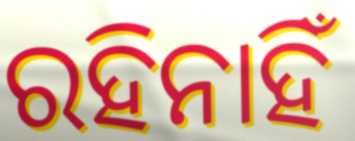
ରହିନାହିଁ